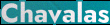
Chavalas